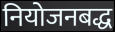
नियोजनबद्ध